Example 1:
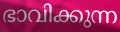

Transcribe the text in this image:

ഭാവിക്കുന്ന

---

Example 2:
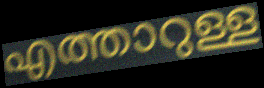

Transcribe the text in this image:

എത്താറുള്ള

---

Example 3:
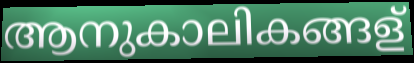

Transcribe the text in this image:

ആനുകാലികങ്ങള്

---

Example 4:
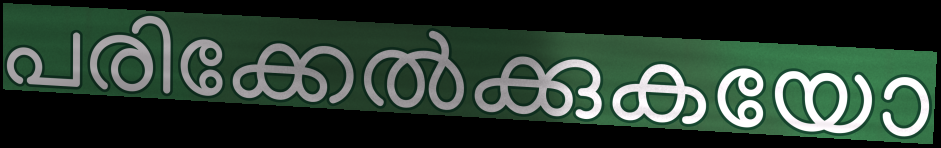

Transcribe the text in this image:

പരിക്കേൽക്കുകയോ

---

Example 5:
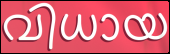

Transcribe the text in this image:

വിധായ